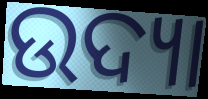
ଉଦ୍ୟା